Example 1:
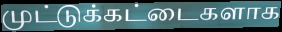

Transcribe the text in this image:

முட்டுக்கட்டைகளாக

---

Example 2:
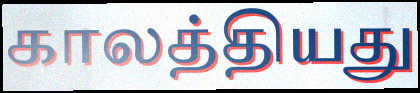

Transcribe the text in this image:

காலத்தியது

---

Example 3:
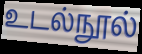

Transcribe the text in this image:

உடல்நூல்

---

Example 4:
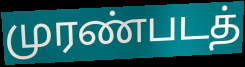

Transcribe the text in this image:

முரண்படத்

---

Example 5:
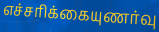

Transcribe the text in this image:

எச்சரிக்கையுணர்வு